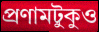
প্রণামটুকুও